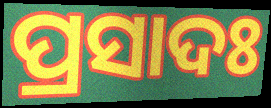
ପ୍ରସାଦଃ